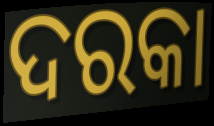
ଦରକା